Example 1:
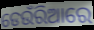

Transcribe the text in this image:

ଡେଉଁରିଆରେ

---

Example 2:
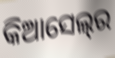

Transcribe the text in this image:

କିଆସେଲ୍‌ର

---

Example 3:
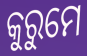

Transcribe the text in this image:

କୁରୁମେ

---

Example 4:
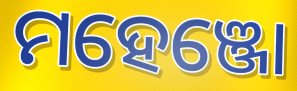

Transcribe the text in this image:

ମହେଞ୍ଜୋ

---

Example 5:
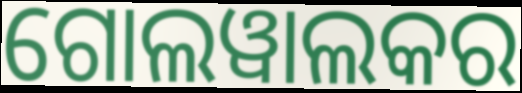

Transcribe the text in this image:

ଗୋଲୱାଲକର